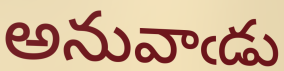
అనువాఁడు